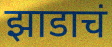
झाडाचं